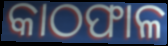
କାଠଫାଳ